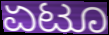
ಏಟೂ